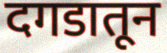
दगडातून